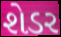
શેડર